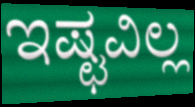
ಇಷ್ಟವಿಲ್ಲ